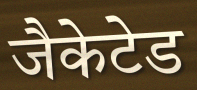
जैकेटेड